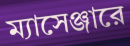
ম্যাসেঞ্জারে